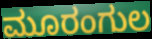
ಮೂರಂಗುಲ